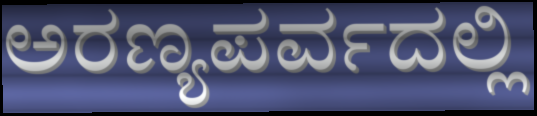
ಅರಣ್ಯಪರ್ವದಲ್ಲಿ